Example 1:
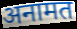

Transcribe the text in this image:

अनामत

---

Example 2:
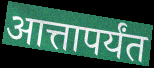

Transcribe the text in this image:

आत्तापर्यंत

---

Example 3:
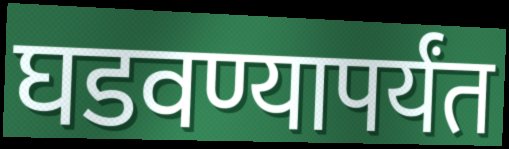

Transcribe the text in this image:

घडवण्यापर्यंत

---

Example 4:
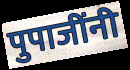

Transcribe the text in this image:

पुपाजींनी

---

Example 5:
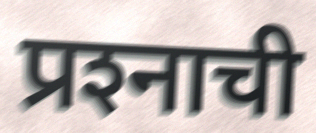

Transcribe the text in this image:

प्रश्‍नाची